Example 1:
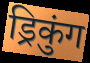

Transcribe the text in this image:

ड्रिकुंग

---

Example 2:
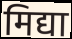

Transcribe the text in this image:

मिद्या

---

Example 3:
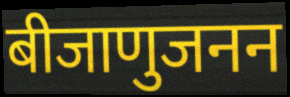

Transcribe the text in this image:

बीजाणुजनन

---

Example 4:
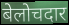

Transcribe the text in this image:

बेलोचदार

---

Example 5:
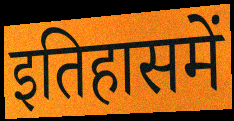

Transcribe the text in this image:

इतिहासमें